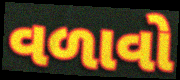
વળાવો